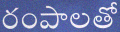
రంపాలతో